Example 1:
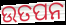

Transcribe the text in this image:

ଉତପନ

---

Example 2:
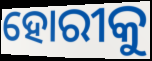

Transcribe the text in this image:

ହୋରୀକୁ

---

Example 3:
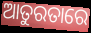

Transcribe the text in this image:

ଆତୁରତାରେ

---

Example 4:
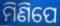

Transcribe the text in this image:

ମିଣିପେ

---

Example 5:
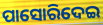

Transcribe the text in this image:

ପାସୋରିଦେଇ